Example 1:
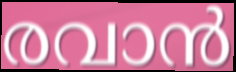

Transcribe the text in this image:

രവാൻ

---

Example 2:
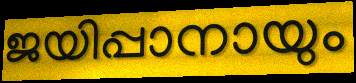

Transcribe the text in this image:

ജയിപ്പാനായും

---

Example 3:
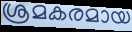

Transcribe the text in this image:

ശ്രമകരമായ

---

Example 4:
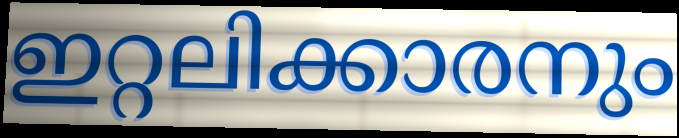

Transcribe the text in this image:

ഇറ്റലിക്കാരനും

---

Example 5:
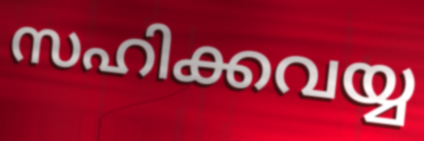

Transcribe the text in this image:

സഹിക്കവയ്യ